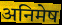
अनिमेष